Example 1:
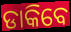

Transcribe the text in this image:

ଡାକିବେ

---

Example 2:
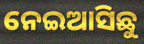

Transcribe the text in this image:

ନେଇଆସିଛୁ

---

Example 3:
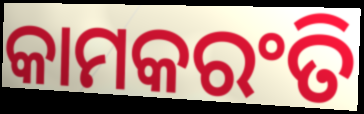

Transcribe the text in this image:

କାମକରଂତି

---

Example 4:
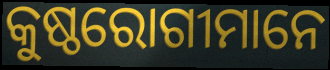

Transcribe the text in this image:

କୁଷ୍ଠରୋଗୀମାନେ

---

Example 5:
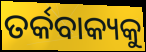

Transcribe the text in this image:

ତର୍କବାକ୍ୟକୁ